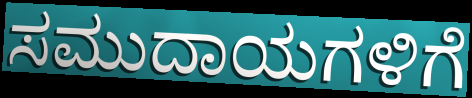
ಸಮುದಾಯಗಳಿಗೆ